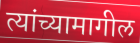
त्यांच्यामागील